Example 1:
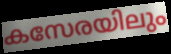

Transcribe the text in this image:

കസേരയിലും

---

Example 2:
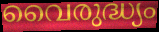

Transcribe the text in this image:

വൈരുദ്ധ്യം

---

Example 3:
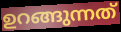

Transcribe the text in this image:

ഉറങ്ങുന്നത്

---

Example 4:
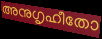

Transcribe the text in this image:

അനുഗൃഹീതോ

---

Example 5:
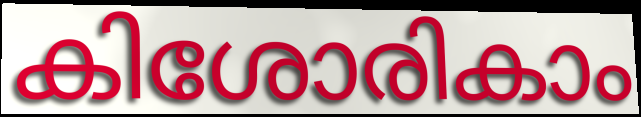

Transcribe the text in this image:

കിശോരികാം